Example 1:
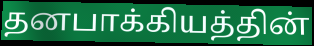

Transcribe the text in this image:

தனபாக்கியத்தின்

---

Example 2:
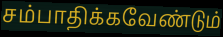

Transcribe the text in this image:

சம்பாதிக்கவேண்டும்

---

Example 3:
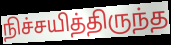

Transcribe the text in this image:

நிச்சயித்திருந்த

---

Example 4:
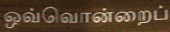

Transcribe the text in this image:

ஒவ்வொன்றைப்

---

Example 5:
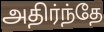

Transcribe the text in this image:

அதிர்ந்தே